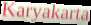
Karyakarta